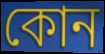
কোন